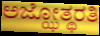
ಅಜ್ಝೋತ್ಥರತಿ